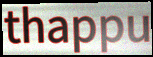
thappu